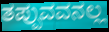
ತಪ್ಪುವವನಲ್ಲ